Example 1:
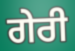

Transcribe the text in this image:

ਗੇਰੀ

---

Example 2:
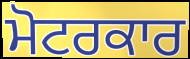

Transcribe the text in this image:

ਮੋਟਰਕਾਰ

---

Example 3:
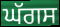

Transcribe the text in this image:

ਘੱਗਸ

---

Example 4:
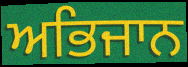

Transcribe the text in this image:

ਅਭਿਜਾਨ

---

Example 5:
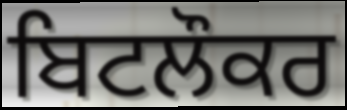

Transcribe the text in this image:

ਬਿਟਲੌਕਰ